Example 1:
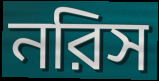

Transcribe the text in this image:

নরিস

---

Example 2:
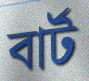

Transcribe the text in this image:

বার্ট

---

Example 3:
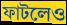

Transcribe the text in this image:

ফাটলেও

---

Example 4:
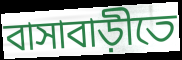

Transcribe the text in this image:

বাসাবাড়ীতে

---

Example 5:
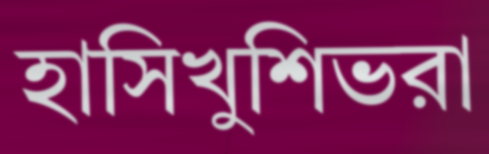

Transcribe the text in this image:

হাসিখুশিভরা